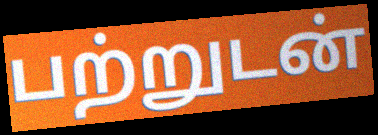
பற்றுடன்